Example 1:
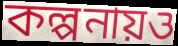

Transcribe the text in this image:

কল্পনায়ও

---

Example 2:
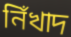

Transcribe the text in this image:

নিঁখাদ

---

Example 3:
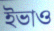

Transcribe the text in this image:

ইভাও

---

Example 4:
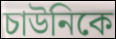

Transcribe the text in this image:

চাউনিকে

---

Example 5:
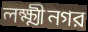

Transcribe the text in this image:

লক্ষ্মীনগর